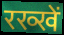
रख्खें